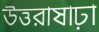
উত্তরাষাঢ়া